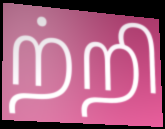
ற்றி